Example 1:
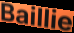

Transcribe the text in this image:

Baillie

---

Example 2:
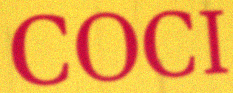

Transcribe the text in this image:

COCI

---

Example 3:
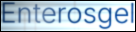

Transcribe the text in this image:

Enterosgel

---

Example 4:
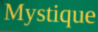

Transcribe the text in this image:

Mystique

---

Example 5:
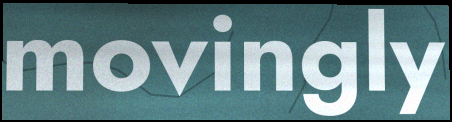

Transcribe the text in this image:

movingly